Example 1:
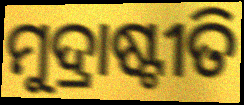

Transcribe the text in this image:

ମୁଦ୍ରାଷ୍ଟୀତି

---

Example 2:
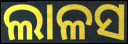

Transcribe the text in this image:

ଲାଳସ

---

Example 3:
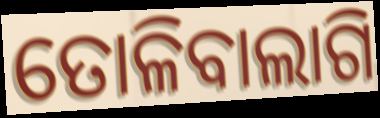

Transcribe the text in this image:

ତୋଳିବାଲାଗି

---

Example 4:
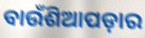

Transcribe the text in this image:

ବାଉଁଶିଆପଡ଼ାର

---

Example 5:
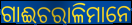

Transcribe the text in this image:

ଗାଈଚରାଳିମାନେ